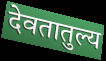
देवतातुल्य